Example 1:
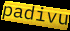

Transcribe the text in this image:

padivu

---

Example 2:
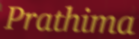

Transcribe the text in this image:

Prathima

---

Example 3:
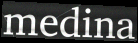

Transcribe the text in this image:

medina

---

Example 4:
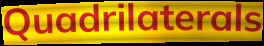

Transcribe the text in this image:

Quadrilaterals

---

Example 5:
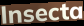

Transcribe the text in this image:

Insecta